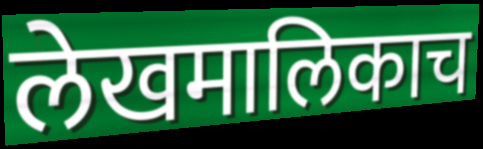
लेखमालिकाच